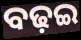
ବଢ଼ଇ